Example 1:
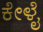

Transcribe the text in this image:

ಕೇಳೈ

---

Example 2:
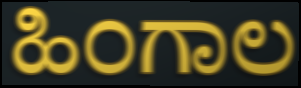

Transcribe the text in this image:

ಹಿಂಗಾಲ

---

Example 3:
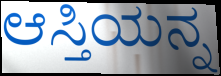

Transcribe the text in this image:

ಆಸ್ತಿಯನ್ನ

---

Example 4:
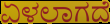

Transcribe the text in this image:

ಏಳಲಾಗದೆ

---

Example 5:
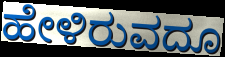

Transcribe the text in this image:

ಹೇಳಿರುವದೂ